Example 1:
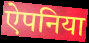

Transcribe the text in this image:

ऐपनिया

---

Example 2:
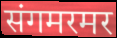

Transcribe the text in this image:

संगमरमर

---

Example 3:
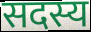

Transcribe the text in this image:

सदस्‍य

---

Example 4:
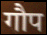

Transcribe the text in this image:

गौप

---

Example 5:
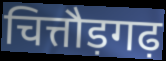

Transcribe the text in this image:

चित्तौड़गढ़